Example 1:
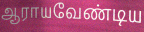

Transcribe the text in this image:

ஆராயவேண்டிய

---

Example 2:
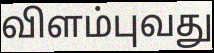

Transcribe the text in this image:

விளம்புவது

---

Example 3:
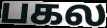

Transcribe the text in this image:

பகல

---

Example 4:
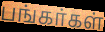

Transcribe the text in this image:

பங்கர்கள்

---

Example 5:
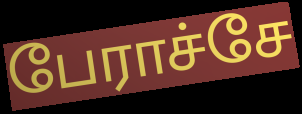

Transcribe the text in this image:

பேராச்சே